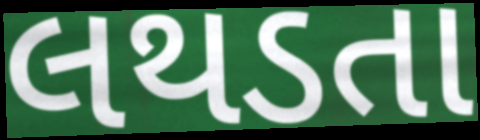
લથડતા